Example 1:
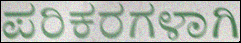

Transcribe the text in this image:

ಪರಿಕರಗಳಾಗಿ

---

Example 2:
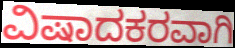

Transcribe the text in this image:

ವಿಷಾದಕರವಾಗಿ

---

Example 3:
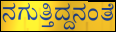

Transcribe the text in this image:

ನಗುತ್ತಿದ್ದನಂತೆ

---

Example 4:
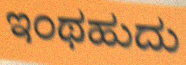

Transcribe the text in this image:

ಇಂಥಹುದು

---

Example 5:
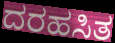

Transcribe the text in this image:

ದರಹಸಿತ